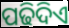
ପଢିଦିଏ